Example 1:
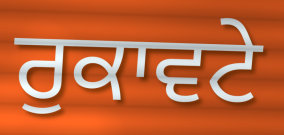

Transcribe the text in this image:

ਰੁਕਾਵਟੇ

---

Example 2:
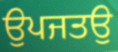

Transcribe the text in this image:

ਉਪਜਤਉ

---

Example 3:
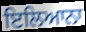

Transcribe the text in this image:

ਇਲਿਆਨਾ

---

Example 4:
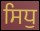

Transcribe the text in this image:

ਸਿਧੁ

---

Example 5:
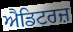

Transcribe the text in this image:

ਐਡਿਟਰਜ਼